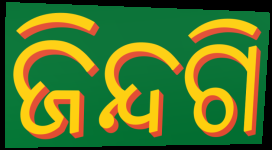
ଜିନ୍ଦଗି